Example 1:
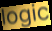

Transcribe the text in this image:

logic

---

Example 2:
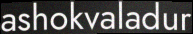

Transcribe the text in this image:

ashokvaladur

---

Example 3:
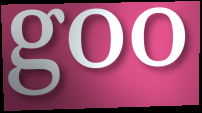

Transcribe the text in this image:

goo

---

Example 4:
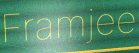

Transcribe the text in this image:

Framjee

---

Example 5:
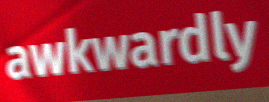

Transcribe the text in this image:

awkwardly